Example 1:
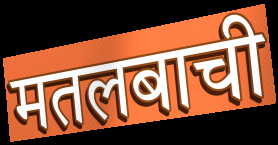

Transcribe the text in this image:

मतलबाची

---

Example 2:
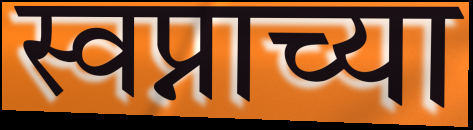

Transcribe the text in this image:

स्वप्नाच्या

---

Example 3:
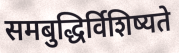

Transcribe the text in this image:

समबुद्धिर्विशिष्यते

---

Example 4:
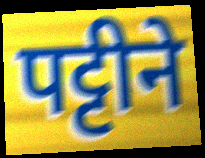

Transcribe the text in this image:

पट्टीने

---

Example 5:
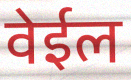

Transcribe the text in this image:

वेईल